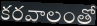
కరవాలంతో